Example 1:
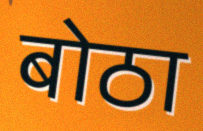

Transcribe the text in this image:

बोठा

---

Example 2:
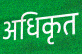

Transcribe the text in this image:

अधिकृत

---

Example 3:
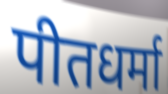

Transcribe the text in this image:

पीतधर्मा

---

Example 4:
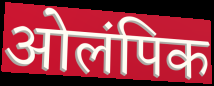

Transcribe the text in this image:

ओलंपिक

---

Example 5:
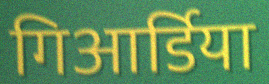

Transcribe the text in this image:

गिआर्डिया